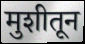
मुशीतून